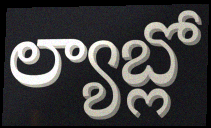
ల్యాబ్లో